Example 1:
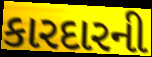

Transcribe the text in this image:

કારદારની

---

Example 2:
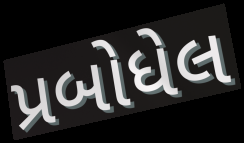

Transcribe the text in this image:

પ્રબોધેલ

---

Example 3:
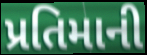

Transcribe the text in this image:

પ્રતિમાની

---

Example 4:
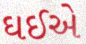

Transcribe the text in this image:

ઘઈએ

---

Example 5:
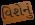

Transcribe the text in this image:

વિશેનું